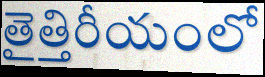
తైత్తిరీయంలో